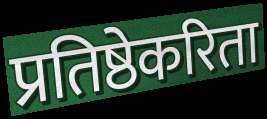
प्रतिष्ठेकरिता